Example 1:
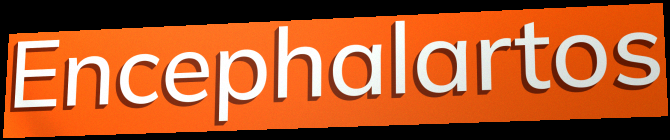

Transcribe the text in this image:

Encephalartos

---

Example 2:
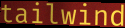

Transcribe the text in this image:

tailwind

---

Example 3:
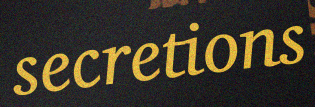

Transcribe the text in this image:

secretions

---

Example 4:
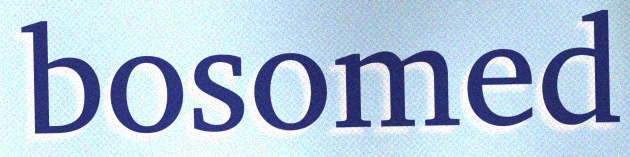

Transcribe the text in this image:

bosomed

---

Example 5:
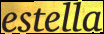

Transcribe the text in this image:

estella